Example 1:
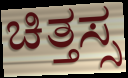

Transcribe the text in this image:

ಚಿತ್ತಸ್ಸ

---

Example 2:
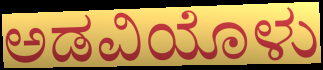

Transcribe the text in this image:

ಅಡವಿಯೊಳು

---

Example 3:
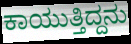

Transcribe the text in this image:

ಕಾಯುತ್ತಿದ್ದನು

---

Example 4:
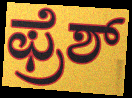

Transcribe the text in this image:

ಫ್ರೆಶ್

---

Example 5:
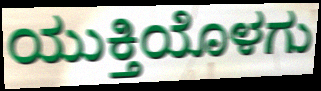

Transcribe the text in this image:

ಯುಕ್ತಿಯೊಳಗು